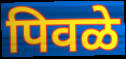
पिवळे